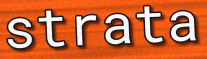
strata